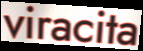
viracita